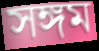
সঙ্গম